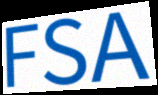
FSA